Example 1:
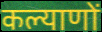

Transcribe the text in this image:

कल्याणों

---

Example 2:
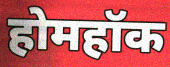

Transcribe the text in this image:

होमहॉक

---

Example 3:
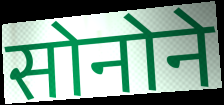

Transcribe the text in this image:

सोनोने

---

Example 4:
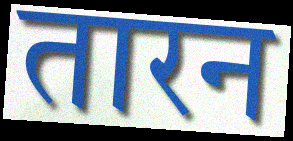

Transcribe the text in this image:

तारन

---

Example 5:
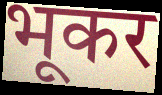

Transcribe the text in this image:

भूकर